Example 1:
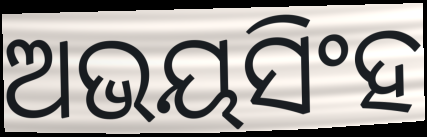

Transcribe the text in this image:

ଅଭୟସିଂହ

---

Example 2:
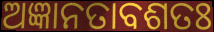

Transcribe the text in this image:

ଅଜ୍ଞାନତାବଶତଃ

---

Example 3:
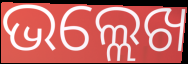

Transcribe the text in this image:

ଭଲ୍ଲେଖ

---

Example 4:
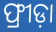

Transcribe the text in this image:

ଫ୍ରୀଡ଼ା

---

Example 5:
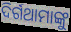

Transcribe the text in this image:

ଦିର୍ଗଥାମାଙ୍କୁ